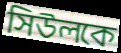
সিউলকে